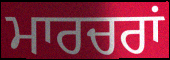
ਮਾਰਚਰਾਂ